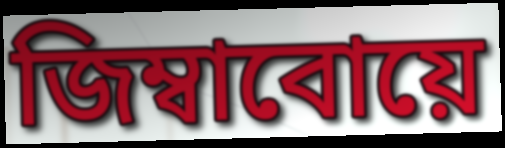
জিম্বাবোয়ে